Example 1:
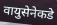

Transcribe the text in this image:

वायुसेनेकडे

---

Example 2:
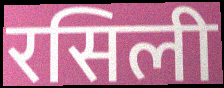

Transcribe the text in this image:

रसिली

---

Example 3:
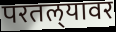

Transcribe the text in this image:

परतल्यावर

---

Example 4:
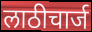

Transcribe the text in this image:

लाठीचार्ज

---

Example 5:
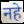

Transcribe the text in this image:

नहे